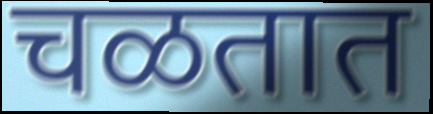
चळतात